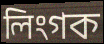
লিংগক